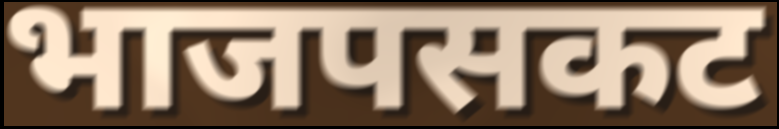
भाजपसकट